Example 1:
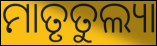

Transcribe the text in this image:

ମାତୃତୁଲ୍ୟା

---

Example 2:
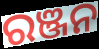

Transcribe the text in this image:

ରଞ୍ଜନ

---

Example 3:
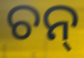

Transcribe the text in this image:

ଚନ୍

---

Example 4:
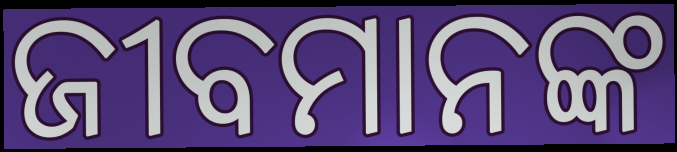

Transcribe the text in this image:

ଜୀବମାନଙ୍କ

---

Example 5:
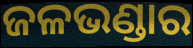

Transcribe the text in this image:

ଜଳଭଣ୍ଡାର